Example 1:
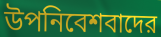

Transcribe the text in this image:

উপনিবেশবাদের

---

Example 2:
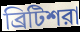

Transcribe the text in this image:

ব্রিটিশরা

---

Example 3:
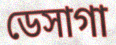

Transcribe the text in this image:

ডেসাগা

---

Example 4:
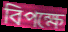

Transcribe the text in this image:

বিপক্ষে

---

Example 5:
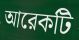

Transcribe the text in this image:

আরেকটি